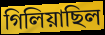
গিলিয়াছিল